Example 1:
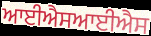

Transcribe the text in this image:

ਆਈਐਸਆਈਐਸ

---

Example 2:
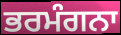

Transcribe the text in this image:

ਭਰਮੰਗਨਾ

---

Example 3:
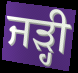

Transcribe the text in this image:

ਜੜ੍ਹੀ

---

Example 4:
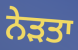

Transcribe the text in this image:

ਨੇੜਤਾ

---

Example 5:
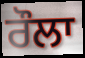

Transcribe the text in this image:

ਰੌਲਾ